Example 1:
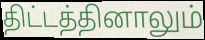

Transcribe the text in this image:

திட்டத்தினாலும்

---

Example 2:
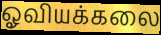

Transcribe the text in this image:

ஓவியக்கலை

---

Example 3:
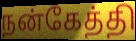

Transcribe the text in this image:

நன்கேத்தி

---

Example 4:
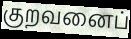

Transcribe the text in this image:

குறவனைப்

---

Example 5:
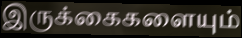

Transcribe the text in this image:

இருக்கைகளையும்